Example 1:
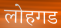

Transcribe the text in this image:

लोहगड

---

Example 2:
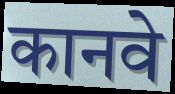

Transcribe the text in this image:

कानवे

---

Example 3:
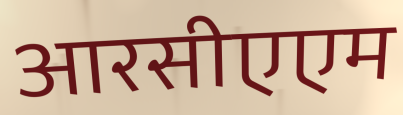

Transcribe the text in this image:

आरसीएएम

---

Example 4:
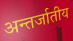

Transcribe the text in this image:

अन्तर्जातीय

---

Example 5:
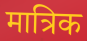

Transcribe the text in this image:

मात्रिक